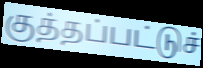
குத்தப்பட்டுச்